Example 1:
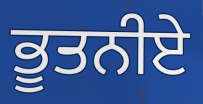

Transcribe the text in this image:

ਭੂਤਨੀਏ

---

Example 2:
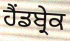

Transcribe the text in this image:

ਹੈਂਡਬ੍ਰੇਕ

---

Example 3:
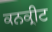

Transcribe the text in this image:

ਕਨਕ੍ਰੀਟ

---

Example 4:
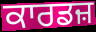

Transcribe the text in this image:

ਕਾਰਡਜ਼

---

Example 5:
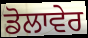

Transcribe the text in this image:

ਡੋਲਾਵੇਰ